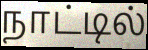
நாட்டில்